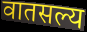
वातसल्य